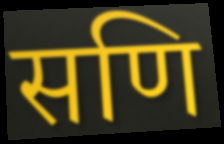
सणि